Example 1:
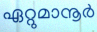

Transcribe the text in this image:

ഏറ്റുമാനൂർ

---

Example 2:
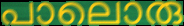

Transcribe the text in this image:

പാലൊരു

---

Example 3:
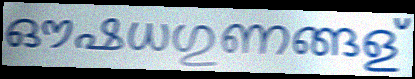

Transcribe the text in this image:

ഔഷധഗുണങ്ങള്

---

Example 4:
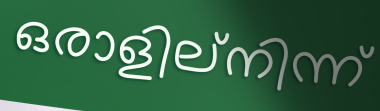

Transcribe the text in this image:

ഒരാളില്നിന്ന്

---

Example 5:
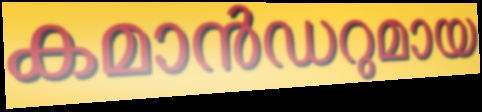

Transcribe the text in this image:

കമാൻഡറുമായ